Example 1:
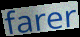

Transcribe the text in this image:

farer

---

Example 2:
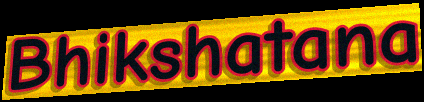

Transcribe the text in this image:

Bhikshatana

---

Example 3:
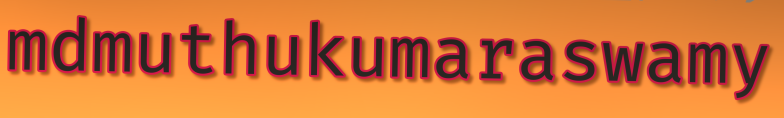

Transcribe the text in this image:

mdmuthukumaraswamy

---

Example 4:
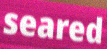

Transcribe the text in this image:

seared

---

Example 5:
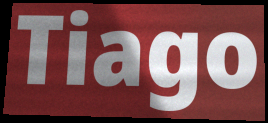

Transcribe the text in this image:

Tiago